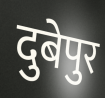
दुबेपुर